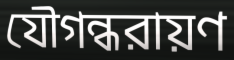
যৌগন্ধরায়ণ